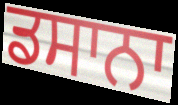
ਡਸਾਨਾ